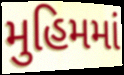
મુહિમમાં